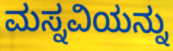
ಮಸ್ನವಿಯನ್ನು